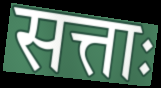
सत्ताः